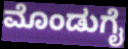
ಮೊಂಡುಗೈ